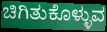
ಚಿಗಿತುಕೊಳ್ಳುವ